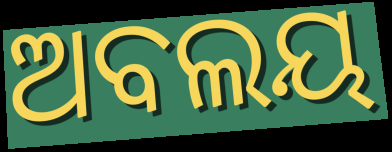
ଅବଲୟ